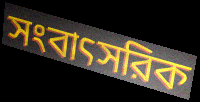
সংবাৎসরিক